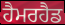
ਹੈਮਰਹੈਡ